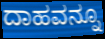
ದಾಹವನ್ನೂ